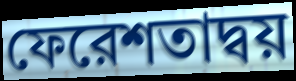
ফেরেশতাদ্বয়